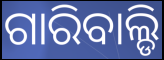
ଗାରିବାଲ୍ଡି